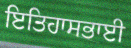
ਇਤਿਹਾਸਭਾਈ